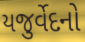
યજુર્વેદનો